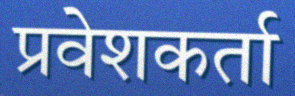
प्रवेशकर्ता